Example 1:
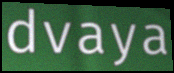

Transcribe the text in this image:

dvaya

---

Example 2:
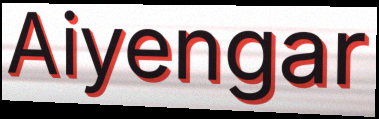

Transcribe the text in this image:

Aiyengar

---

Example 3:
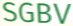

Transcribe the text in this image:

SGBV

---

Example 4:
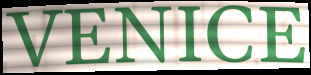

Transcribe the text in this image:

VENICE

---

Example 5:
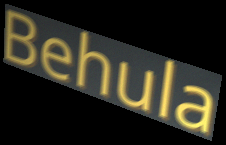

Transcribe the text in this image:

Behula